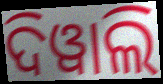
ଦିୱାଲି